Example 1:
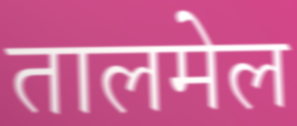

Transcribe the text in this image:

तालमेल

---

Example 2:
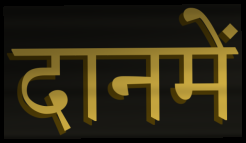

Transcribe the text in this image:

दानमें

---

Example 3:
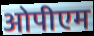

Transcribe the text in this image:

ओपीएम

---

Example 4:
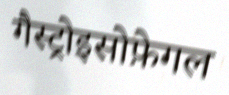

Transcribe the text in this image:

गैस्ट्रोइसोफ़ेगल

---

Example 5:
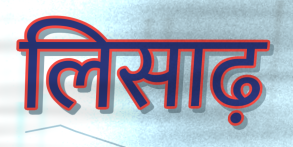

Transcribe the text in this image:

लिसाढ़